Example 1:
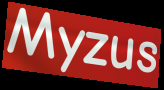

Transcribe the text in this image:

Myzus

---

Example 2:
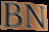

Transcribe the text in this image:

BN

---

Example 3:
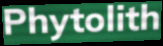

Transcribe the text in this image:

Phytolith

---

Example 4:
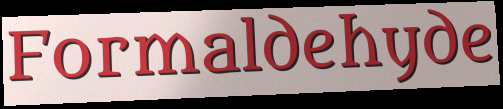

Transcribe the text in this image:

Formaldehyde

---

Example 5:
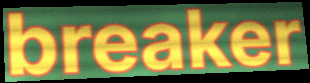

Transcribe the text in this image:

breaker